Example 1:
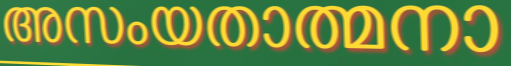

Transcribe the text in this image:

അസംയതാത്മനാ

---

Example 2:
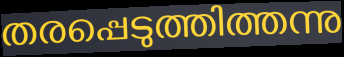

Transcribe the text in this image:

തരപ്പെടുത്തിത്തന്നു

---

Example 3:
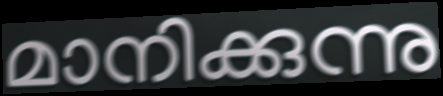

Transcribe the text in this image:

മാനിക്കുന്നു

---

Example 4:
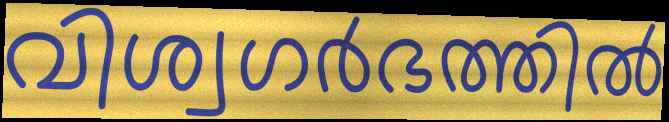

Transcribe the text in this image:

വിശ്വഗർഭത്തിൽ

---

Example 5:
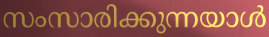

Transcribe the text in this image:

സംസാരിക്കുന്നയാൾ